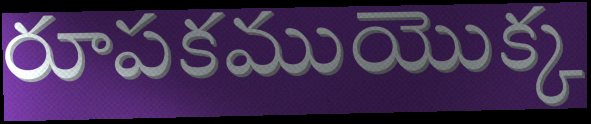
రూపకముయొక్క